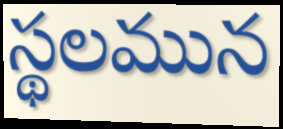
స్థలమున